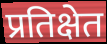
प्रतिक्षेत